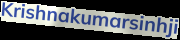
Krishnakumarsinhji